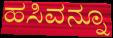
ಹಸಿವನ್ನೂ